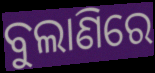
ବୁଲାଣିରେ